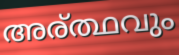
അര്ത്ഥവും